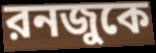
রনজুকে